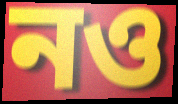
নও